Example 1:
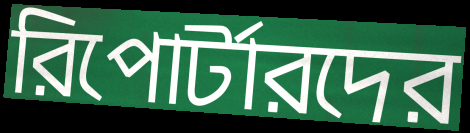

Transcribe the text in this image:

রিপোর্টারদের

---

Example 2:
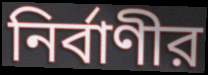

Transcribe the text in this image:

নির্বাণীর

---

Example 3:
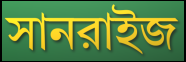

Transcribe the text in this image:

সানরাইজ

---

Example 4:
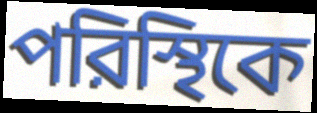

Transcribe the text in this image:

পরিস্থিকে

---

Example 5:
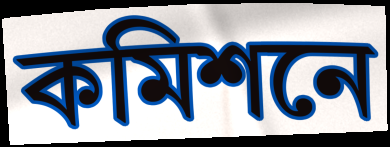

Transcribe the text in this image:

কমিশনে